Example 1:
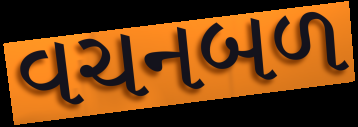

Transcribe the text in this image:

વચનબળ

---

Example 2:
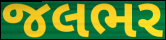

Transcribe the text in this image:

જલભર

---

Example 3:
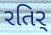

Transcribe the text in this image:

રતિર્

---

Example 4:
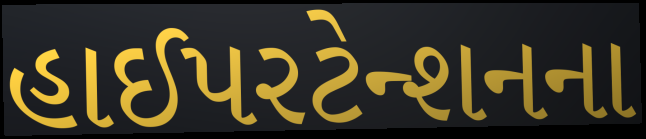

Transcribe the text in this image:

હાઈપરટેન્શનના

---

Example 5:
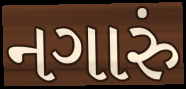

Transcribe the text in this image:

નગારું